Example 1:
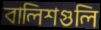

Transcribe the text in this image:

বালিশগুলি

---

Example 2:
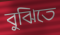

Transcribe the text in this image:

বুঝিতে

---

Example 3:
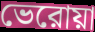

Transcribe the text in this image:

ভেরোয়া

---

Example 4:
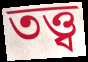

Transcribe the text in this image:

তত্ত্ব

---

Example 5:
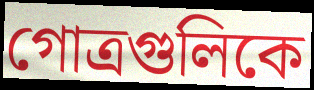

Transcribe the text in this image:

গোত্রগুলিকে